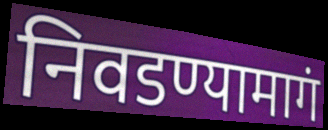
निवडण्यामागं